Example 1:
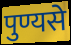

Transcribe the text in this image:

पुण्यसे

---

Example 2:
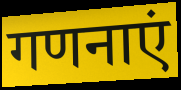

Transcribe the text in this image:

गणनाएं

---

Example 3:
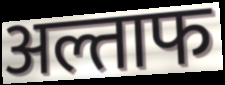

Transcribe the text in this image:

अल्ताफ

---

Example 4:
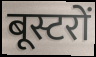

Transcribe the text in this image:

बूस्टरों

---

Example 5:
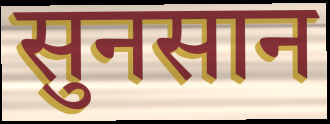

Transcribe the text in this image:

सुनसान